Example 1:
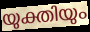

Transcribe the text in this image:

യുക്തിയും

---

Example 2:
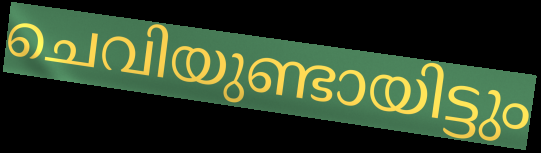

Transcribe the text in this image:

ചെവിയുണ്ടായിട്ടും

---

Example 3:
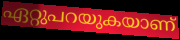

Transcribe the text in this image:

ഏറ്റുപറയുകയാണ്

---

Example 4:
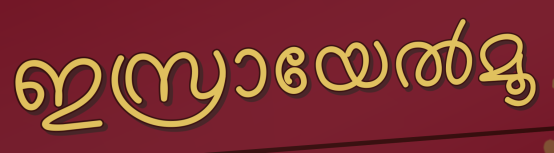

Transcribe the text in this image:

ഇസ്രായേൽമൂ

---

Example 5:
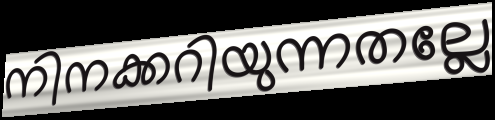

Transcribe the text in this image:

നിനക്കറിയുന്നതല്ലേ